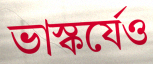
ভাস্কর্যেও